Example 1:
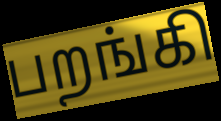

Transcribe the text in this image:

பறங்கி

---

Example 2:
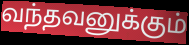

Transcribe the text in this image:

வந்தவனுக்கும்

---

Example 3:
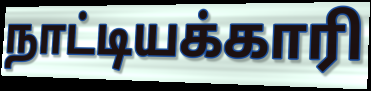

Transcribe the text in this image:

நாட்டியக்காரி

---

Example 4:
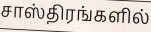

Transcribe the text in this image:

சாஸ்திரங்களில்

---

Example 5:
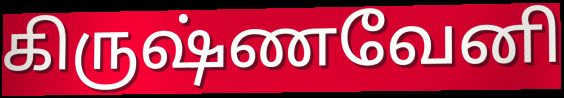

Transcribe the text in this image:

கிருஷ்ணவேனி